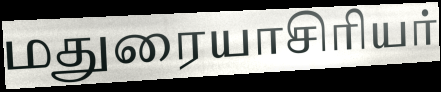
மதுரையாசிரியர்